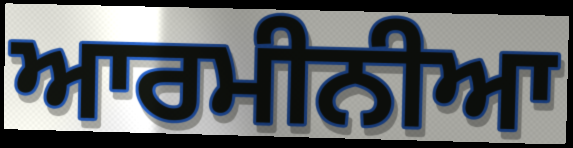
ਆਰਮੀਨੀਆ